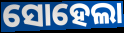
ସୋହେଲା